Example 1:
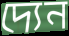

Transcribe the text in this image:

দ্যেন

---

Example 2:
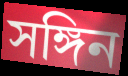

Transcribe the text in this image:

সঙ্গিন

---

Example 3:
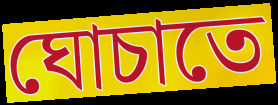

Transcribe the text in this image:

ঘোচাতে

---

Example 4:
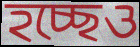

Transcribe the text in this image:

হচ্ছেও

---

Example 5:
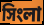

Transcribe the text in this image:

সিংলা